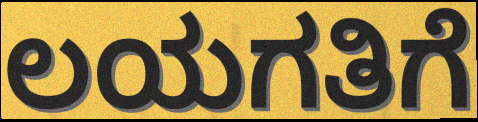
ಲಯಗತಿಗೆ